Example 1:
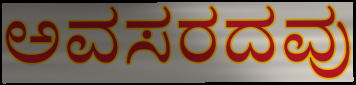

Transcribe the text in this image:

ಅವಸರದವು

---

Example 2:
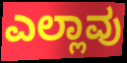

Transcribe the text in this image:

ಎಲ್ಲಾವು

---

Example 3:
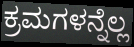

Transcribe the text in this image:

ಕ್ರಮಗಳನ್ನೆಲ್ಲ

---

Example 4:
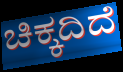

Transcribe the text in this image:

ಚಿಕ್ಕದಿದೆ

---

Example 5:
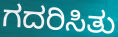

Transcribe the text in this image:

ಗದರಿಸಿತು